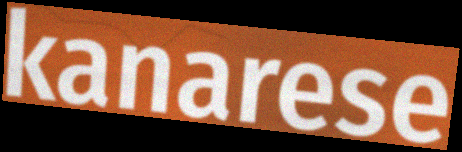
kanarese